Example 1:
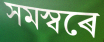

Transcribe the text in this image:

সমস্বৰে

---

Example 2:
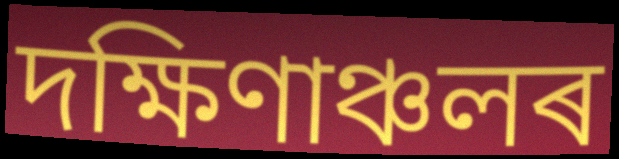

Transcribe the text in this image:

দক্ষিণাঞ্চলৰ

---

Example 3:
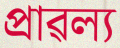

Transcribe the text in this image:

প্ৰাৱল্য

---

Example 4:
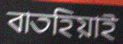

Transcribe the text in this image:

বাতহিয়াই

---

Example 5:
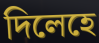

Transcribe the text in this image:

দিলেহে